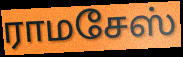
ராமசேஸ்